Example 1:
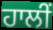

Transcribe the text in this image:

ਹਾਲੀਂ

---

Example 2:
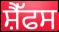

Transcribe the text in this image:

ਸ਼ੈੱਫਸ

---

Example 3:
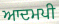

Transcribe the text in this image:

ਆਦਮਪੀ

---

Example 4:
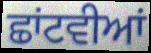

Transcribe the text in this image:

ਛਾਂਟਵੀਆਂ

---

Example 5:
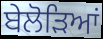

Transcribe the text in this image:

ਬੇਲੋੜਿਆਂ